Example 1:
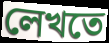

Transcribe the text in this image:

লেখতে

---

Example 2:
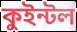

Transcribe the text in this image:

কুইন্টল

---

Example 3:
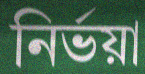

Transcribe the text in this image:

নির্ভয়া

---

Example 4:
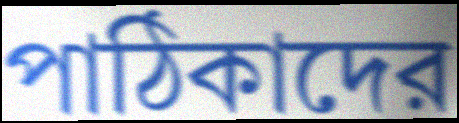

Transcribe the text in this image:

পাঠিকাদের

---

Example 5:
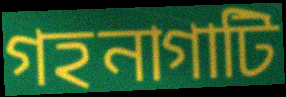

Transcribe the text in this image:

গহনাগাটি